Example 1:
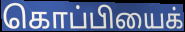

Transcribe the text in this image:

கொப்பியைக்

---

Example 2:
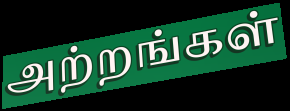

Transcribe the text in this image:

அற்றங்கள்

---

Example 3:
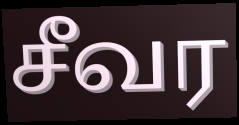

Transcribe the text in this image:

சீவர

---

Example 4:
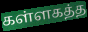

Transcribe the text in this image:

கள்ளகத்த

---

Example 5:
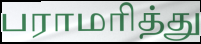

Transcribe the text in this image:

பராமரித்து